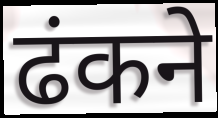
ढंकने